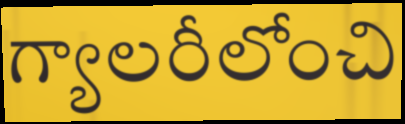
గ్యాలరీలోంచి